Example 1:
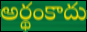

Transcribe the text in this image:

అర్థంకాదు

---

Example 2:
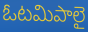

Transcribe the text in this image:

ఓటమిపాలై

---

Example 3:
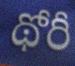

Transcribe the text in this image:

థోరీ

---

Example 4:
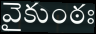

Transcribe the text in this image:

వైకుంఠః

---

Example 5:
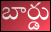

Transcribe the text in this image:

బార్డు